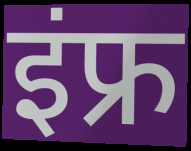
इंफ्र